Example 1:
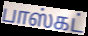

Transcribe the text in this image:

பாஸ்கட்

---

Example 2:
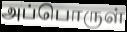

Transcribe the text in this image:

அப்பொருள்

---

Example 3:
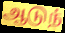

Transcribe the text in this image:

ஆடுந்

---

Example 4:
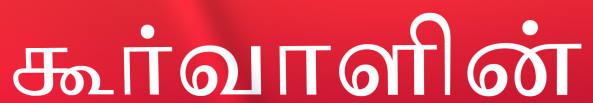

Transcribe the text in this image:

கூர்வாளின்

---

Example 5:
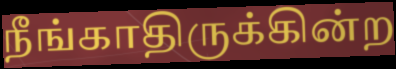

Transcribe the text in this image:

நீங்காதிருக்கின்ற